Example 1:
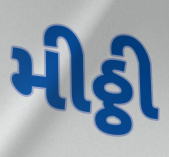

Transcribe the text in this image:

મીઠ્ઠી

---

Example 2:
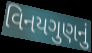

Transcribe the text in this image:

વિનયગુણનું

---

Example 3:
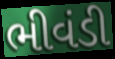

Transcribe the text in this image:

ભીવંડી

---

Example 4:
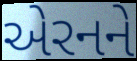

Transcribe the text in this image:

એરનને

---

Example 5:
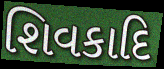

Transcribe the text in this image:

શિવકાદિ